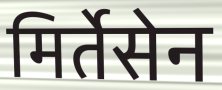
मिर्तेसेन